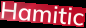
Hamitic